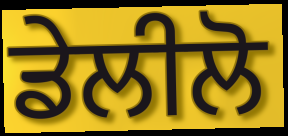
ਡੇਲੀਲੋ